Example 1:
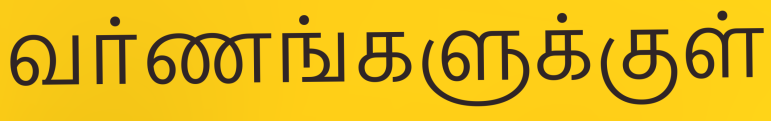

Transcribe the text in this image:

வர்ணங்களுக்குள்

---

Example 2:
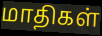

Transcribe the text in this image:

மாதிகள்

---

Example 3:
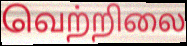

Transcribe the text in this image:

வெற்றிலை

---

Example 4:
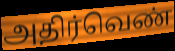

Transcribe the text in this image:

அதிர்வெண்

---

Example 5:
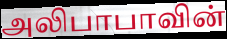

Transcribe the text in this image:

அலிபாபாவின்